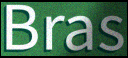
Bras